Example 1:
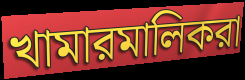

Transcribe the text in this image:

খামারমালিকরা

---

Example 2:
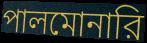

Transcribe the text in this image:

পালমোনারি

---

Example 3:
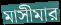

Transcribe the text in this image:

মাসীমার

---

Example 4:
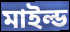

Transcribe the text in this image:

মাইল্ড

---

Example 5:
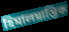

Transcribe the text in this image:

হিমালয়ান্তিক